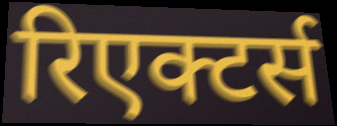
रिएक्टर्स